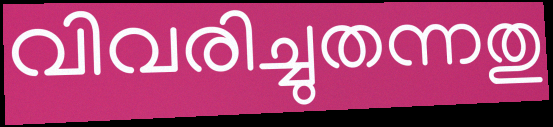
വിവരിച്ചുതന്നതു